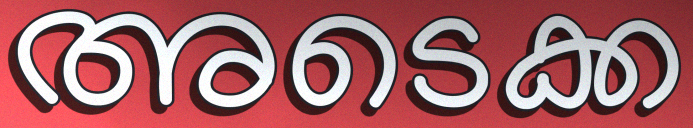
അടെക്ക